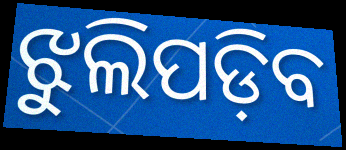
ଝୁଲିପଡ଼ିବ